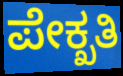
ಪೇಕ್ಖತಿ